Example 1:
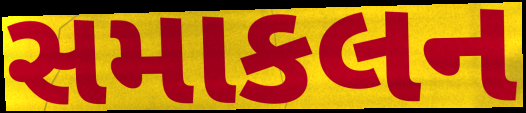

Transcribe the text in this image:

સમાકલન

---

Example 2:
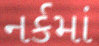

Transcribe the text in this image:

નર્કમાં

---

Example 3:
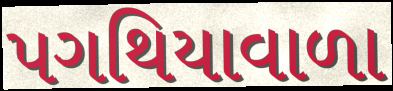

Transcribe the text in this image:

પગથિયાવાળા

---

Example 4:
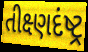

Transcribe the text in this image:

તીક્ષ્ણદંષ્ટ્ર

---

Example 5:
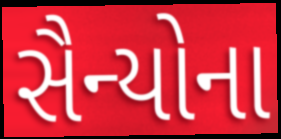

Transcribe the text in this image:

સૈન્યોના